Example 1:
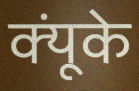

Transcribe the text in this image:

क्यूंके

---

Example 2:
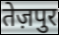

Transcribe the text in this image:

तेज़पुर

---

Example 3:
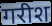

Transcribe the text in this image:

गरीश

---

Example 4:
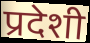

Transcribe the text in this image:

प्रदेशी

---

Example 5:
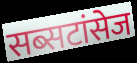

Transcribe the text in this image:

सब्सटांसेज